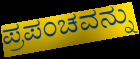
ಪ್ರಪಂಚವನ್ನು